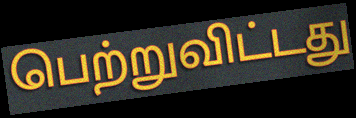
பெற்றுவிட்டது